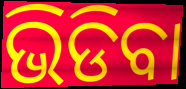
ଭିଡିବା